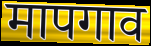
मापगाव